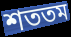
শততম